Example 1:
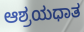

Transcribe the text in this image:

ಆಶ್ರಯಧಾತ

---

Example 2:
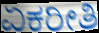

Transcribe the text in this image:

ಏಕರೀತಿ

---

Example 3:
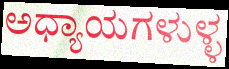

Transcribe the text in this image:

ಅಧ್ಯಾಯಗಳುಳ್ಳ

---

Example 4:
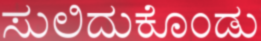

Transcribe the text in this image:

ಸುಲಿದುಕೊಂಡು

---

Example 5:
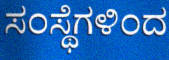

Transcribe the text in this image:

ಸಂಸ್ಥೆಗಳಿಂದ